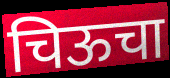
चिऊचा